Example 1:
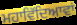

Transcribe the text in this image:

ਮਹਾਵਿੱਦਿਆਵਾਂ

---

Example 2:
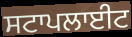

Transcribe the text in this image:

ਸਟਾਪਲਾਈਟ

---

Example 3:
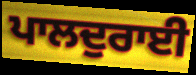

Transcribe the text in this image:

ਪਾਲਦੁਰਾਈ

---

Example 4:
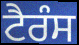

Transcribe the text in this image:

ਟੈਰੰਸ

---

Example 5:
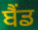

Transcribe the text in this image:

ਬੈਂਡ